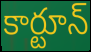
కార్టూన్